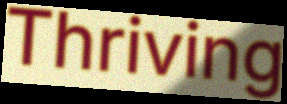
Thriving